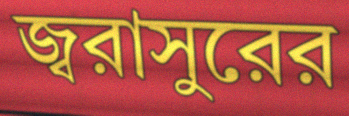
জ্বরাসুরের